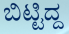
ಬಿಟ್ಟಿದ್ದ